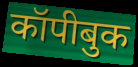
कॉपीबुक